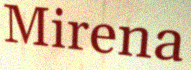
Mirena